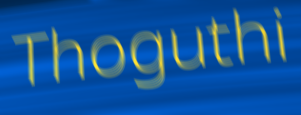
Thoguthi